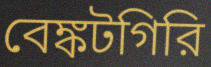
বেঙ্কটগিরি